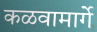
कळवामार्गे